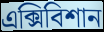
এক্সিবিশান